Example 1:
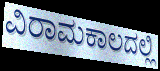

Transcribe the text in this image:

ವಿರಾಮಕಾಲದಲ್ಲಿ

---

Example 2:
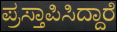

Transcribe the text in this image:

ಪ್ರಸ್ತಾಪಿಸಿದ್ದಾರೆ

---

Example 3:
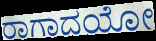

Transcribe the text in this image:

ರಾಗಾದಯೋ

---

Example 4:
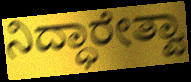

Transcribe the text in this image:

ನಿದ್ಧಾರೇತ್ವಾ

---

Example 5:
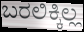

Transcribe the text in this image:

ಬರಲಿಕ್ಕಿಲ್ಲ